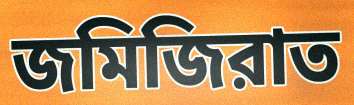
জমিজিরাত